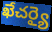
ఖేచర్యై